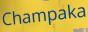
Champaka